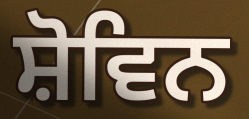
ਸ਼ੋਵਿਨ